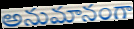
అనుమానంగా